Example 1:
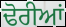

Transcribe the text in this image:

ਢੋਰੀਆਂ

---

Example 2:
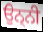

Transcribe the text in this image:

ਉਨ੍ਨੀ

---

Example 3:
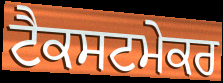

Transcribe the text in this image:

ਟੈਕਸਟਮੇਕਰ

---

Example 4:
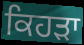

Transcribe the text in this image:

ਕਿਹੜਾ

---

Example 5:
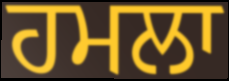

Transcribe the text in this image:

ਹਮਲਾ